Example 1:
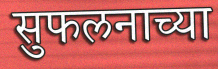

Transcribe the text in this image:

सुफलनाच्या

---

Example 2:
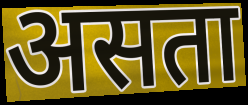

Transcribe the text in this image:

असता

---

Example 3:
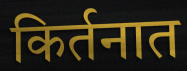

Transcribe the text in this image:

किर्तनात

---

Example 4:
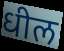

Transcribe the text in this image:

धील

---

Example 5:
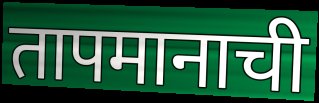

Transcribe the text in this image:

तापमानाची